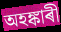
অহঙ্কাৰী